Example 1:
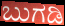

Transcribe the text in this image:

ಬುಗಡಿ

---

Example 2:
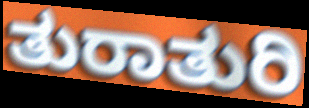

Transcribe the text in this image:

ತುರಾತುರಿ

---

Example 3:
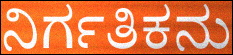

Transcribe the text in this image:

ನಿರ್ಗತಿಕನು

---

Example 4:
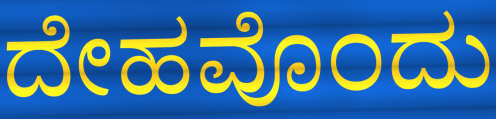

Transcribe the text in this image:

ದೇಹವೊಂದು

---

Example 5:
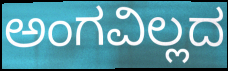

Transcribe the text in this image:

ಅಂಗವಿಲ್ಲದ